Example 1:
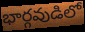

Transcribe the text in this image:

భార్గవుడిలో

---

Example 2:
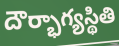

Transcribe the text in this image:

దౌర్భాగ్యస్థితి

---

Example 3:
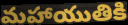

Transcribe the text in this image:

మహాయుతికి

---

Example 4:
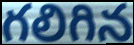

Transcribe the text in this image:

గలిగిన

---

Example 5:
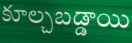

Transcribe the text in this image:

కూల్చబడ్డాయి